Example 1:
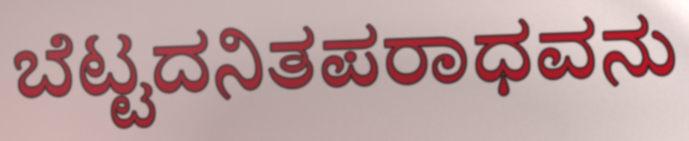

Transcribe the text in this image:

ಬೆಟ್ಟದನಿತಪರಾಧವನು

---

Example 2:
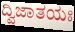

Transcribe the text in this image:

ದ್ವಿಜಾತಯಃ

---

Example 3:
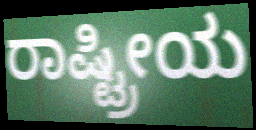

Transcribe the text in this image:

ರಾಷ್ಟ್ರೀಯ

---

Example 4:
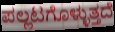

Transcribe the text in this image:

ಪಲ್ಲಟಗೊಳ್ಳುತ್ತದೆ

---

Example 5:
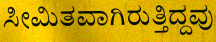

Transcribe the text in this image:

ಸೀಮಿತವಾಗಿರುತ್ತಿದ್ದವು